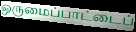
ஒருமைப்பாட்டைப்